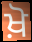
ਖ਼ੋ